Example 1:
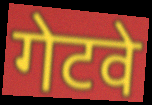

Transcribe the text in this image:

गेटवे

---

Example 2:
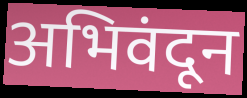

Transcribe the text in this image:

अभिवंदून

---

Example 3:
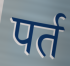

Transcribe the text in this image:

पर्त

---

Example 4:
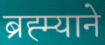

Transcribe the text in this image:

ब्रह्म्याने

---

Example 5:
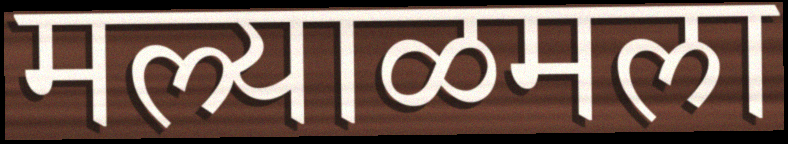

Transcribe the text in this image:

मल्याळमला